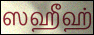
ஸஹீஹ்